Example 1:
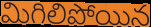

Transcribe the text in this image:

మిగిలిపోయిన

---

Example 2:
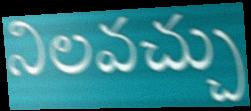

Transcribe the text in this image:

నిలవచ్చు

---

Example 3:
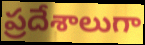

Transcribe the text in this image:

ప్రదేశాలుగా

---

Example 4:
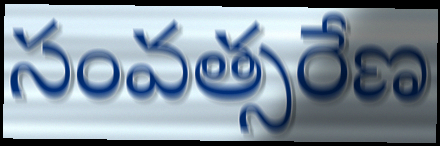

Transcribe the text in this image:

సంవత్సరేణ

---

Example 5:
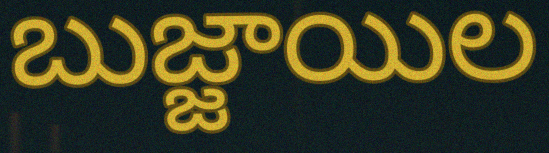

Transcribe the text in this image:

బుజ్జాయిల